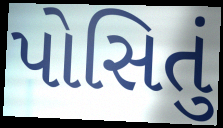
પોસિતું